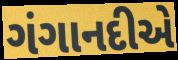
ગંગાનદીએ